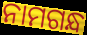
ନାମଗନ୍ଧ